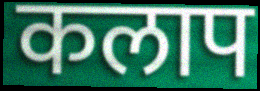
कलाप